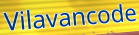
Vilavancode